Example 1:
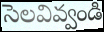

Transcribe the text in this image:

సెలవివ్వండి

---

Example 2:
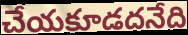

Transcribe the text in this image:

చేయకూడదనేది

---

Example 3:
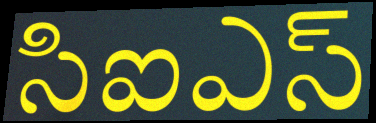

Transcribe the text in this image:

సిఐఎస్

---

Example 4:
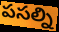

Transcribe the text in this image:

పసల్ని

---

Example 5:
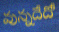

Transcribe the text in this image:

వున్నదేదో